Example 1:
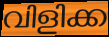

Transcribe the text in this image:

വിളിക്ക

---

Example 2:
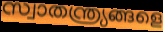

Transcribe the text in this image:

സ്വാതന്ത്ര്യങ്ങളെ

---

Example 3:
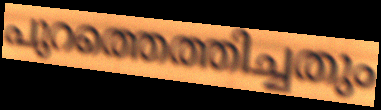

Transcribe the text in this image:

പുറത്തെത്തിച്ചതും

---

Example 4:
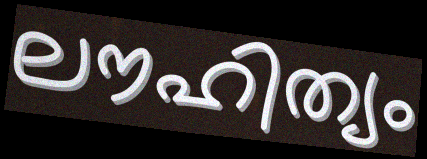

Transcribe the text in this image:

ലൗഹിത്യം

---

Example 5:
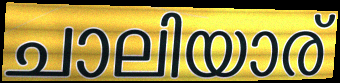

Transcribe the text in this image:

ചാലിയാര്